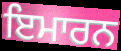
ਇਮਾਰਨ